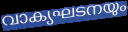
വാക്യഘടനയും